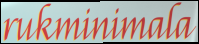
rukminimala